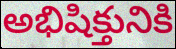
అభిషిక్తునికి